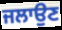
ਜਲਾਉਣ